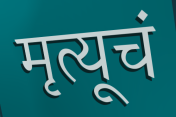
मृत्यूचं